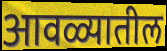
आवळ्यातील